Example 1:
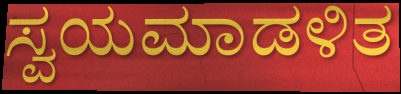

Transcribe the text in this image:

ಸ್ವಯಮಾಡಳಿತ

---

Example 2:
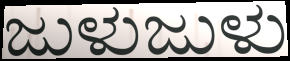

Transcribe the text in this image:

ಜುಳುಜುಳು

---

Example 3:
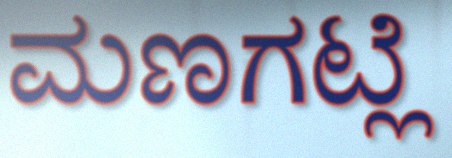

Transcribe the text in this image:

ಮಣಗಟ್ಲೆ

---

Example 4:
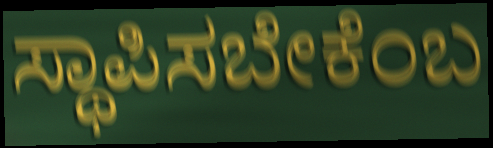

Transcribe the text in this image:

ಸ್ಥಾಪಿಸಬೇಕೆಂಬ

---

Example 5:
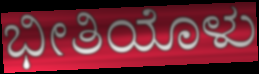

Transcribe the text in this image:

ಭೀತಿಯೊಳು